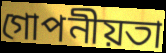
গোপনীয়তা